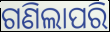
ଗଣିଲାପରି